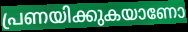
പ്രണയിക്കുകയാണോ